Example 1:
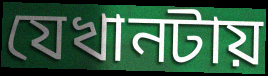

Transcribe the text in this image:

যেখানটায়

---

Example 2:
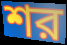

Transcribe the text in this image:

শর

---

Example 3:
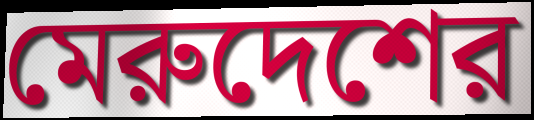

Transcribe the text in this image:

মেরুদেশের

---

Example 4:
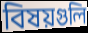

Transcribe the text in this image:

বিষয়গুলি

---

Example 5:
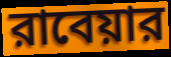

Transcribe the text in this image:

রাবেয়ার